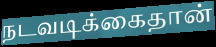
நடவடிக்கைதான்